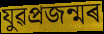
যুৱপ্ৰজন্মৰ